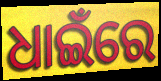
ଧାଇଁରେ